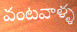
వంటవాళ్ళ